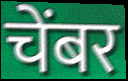
चेंबर